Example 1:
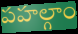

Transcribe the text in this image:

పహల్గాం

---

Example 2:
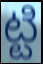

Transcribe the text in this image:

ట్టి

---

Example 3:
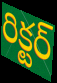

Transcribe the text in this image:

రిక్టర్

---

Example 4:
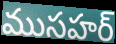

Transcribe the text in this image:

ముసహర్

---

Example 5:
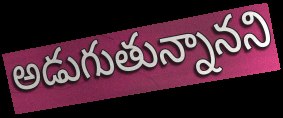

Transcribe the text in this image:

అడుగుతున్నానని